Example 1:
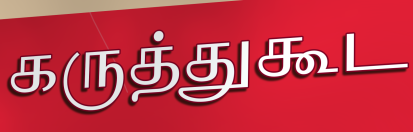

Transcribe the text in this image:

கருத்துகூட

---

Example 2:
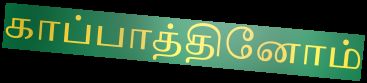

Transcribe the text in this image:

காப்பாத்தினோம்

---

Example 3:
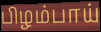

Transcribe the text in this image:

பிழம்பாய்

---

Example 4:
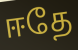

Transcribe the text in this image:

ஈதே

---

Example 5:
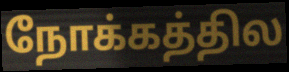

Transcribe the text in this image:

நோக்கத்தில